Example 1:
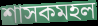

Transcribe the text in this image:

শাসকমহল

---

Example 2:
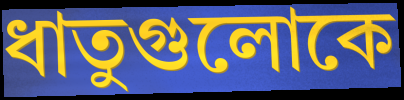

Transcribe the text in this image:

ধাতুগুলোকে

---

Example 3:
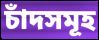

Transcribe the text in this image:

চাঁদসমূহ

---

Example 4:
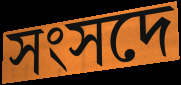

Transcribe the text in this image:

সংসদে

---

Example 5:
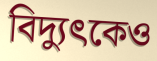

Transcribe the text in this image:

বিদ্যুৎকেও